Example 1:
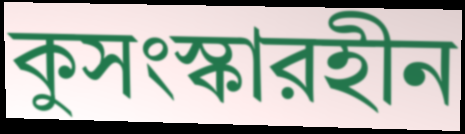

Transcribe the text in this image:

কুসংস্কারহীন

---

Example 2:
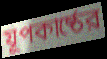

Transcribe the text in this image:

যূপকাষ্ঠের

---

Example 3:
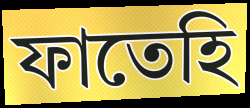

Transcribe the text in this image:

ফাতেহি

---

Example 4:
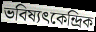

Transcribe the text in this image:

ভবিষ্যৎকেন্দ্রিক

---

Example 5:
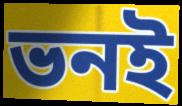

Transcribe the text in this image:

ভনই